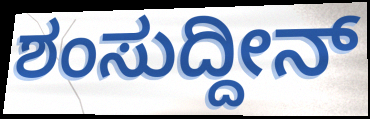
ಶಂಸುದ್ದೀನ್